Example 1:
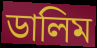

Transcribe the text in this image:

ডালিম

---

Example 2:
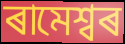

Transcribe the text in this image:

ৰামেশ্বৰ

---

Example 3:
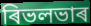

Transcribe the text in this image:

ৰিভলভাৰ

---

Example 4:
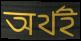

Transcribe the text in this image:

অৰ্থই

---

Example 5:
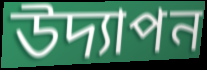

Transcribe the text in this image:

উদ্যাপন